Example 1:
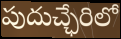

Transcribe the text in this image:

పుదుచ్ఛేరిలో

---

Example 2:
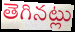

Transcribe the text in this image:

తెగినట్లు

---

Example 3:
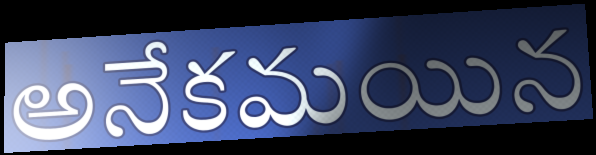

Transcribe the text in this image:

అనేకమయిన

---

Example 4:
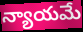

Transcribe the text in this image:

న్యాయమే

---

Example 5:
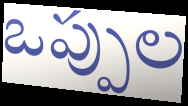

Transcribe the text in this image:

ఒప్పుల